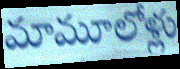
మామూలోళ్లు